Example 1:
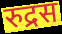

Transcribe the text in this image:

रुद्रस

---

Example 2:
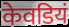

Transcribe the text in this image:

केवडियं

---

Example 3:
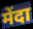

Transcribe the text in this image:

मेंदा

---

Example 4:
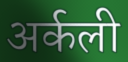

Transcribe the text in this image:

अर्कली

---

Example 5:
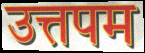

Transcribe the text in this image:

उत्तपम